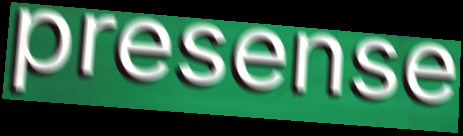
presense